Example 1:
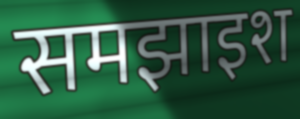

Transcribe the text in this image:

समझाइश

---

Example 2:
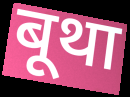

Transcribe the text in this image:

बूथा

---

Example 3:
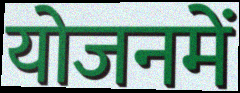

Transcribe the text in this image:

योजनमें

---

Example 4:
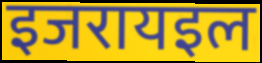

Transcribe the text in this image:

इजरायइल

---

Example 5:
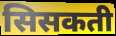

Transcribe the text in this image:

सिसकती